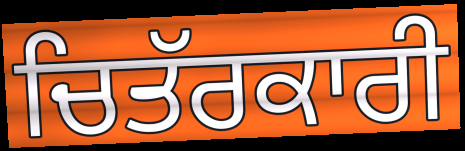
ਚਿਤੱਰਕਾਰੀ